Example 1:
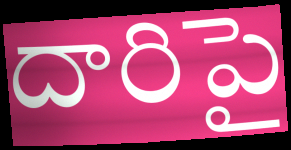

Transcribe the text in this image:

దారిపై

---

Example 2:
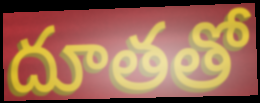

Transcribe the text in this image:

దూతతో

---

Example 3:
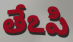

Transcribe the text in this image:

తేఽపి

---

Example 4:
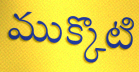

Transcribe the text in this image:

ముక్కొటి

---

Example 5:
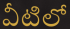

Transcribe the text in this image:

వీటిలో